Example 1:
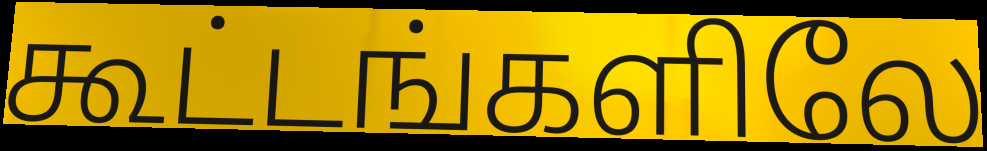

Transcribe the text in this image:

கூட்டங்களிலே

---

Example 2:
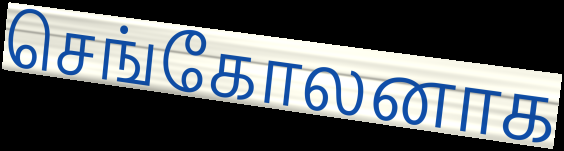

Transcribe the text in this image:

செங்கோலனாக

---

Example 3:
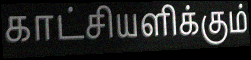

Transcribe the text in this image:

காட்சியளிக்கும்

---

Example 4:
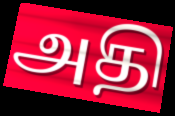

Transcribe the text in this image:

அதி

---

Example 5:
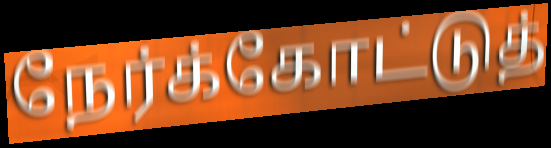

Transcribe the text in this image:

நேர்க்கோட்டுத்